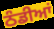
ਠੰਡੀਆਂ